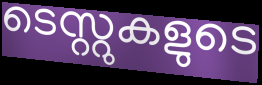
ടെസ്റ്റുകളുടെ